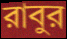
রাবুর